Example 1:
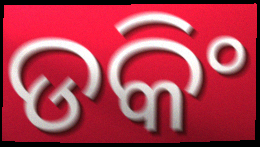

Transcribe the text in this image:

ଡକିଂ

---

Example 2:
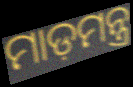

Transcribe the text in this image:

ମାଡ଼ମନ୍ତ୍ର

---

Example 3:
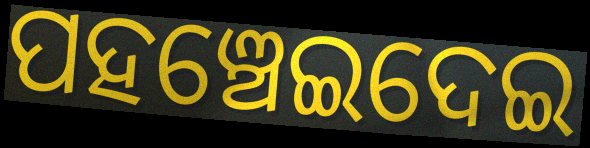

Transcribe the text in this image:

ପହଞ୍ଚେଇଦେଇ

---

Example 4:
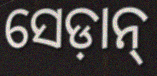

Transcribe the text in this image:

ସେଡ଼ାନ୍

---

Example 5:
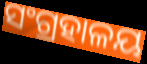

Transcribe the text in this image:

ସଂଗ୍ରହାଳୟ